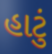
હાટું